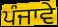
ਪੰਜਾਵੇ